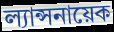
ল্যান্সনায়েক